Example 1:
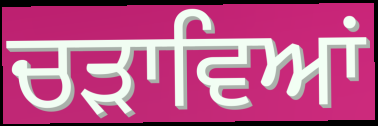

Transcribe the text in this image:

ਚੜਾਵਿਆਂ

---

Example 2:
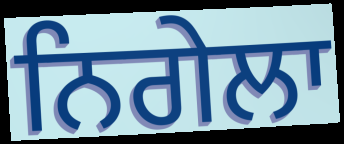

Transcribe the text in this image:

ਨਿਗੇਲਾ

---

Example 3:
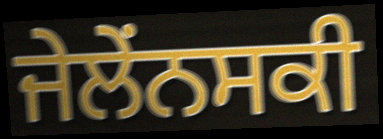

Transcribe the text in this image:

ਜੇਲੇਂਨਸਕੀ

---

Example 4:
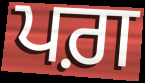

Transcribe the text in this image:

ਪਗ਼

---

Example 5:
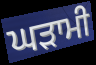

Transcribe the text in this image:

ਘੜਾਮੀ